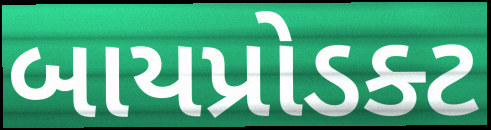
બાયપ્રોડક્ટ